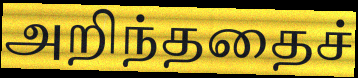
அறிந்ததைச்